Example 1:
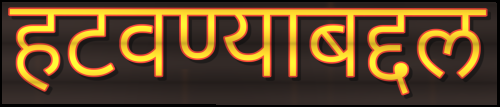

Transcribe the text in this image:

हटवण्याबद्दल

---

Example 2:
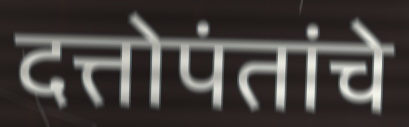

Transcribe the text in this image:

दत्तोपंतांचे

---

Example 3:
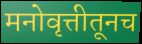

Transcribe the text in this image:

मनोवृत्तीतूनच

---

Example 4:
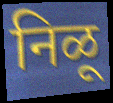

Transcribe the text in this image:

निळू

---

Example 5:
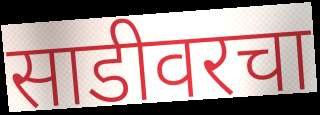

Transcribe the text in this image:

साडीवरचा